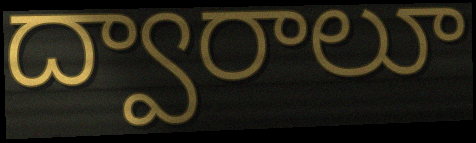
ద్వారాలూ